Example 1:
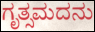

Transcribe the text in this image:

ಗೃತ್ಸಮದನು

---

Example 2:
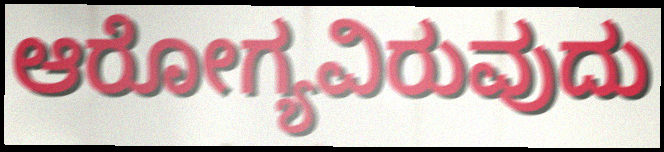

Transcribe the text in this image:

ಆರೋಗ್ಯವಿರುವುದು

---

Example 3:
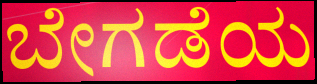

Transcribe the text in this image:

ಬೇಗಡೆಯ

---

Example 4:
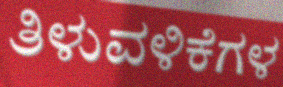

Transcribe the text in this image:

ತಿಳುವಳಿಕೆಗಳ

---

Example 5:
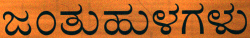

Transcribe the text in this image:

ಜಂತುಹುಳಗಳು